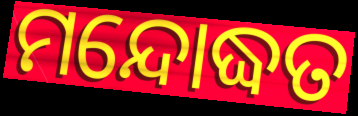
ମନ୍ଦୋଦ୍ଧତ